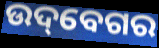
ଉଦ୍‌ବେଗର